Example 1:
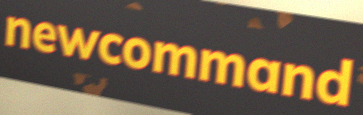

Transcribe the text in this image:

newcommand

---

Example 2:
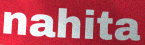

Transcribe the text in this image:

nahita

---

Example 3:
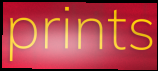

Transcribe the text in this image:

prints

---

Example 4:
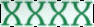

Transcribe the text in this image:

XXXX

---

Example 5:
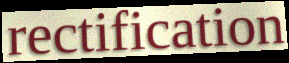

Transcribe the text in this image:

rectification